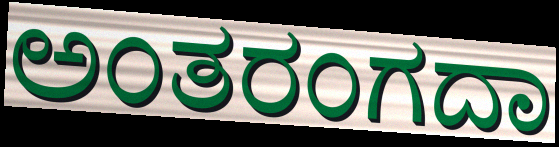
ಅಂತರಂಗದಾ